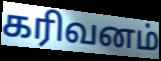
கரிவனம்